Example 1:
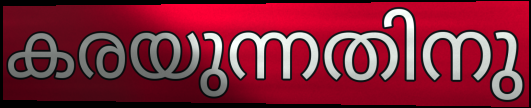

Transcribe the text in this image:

കരയുന്നതിനു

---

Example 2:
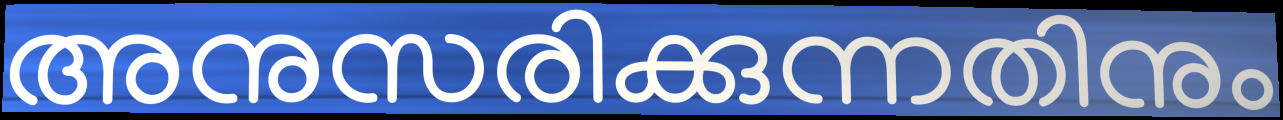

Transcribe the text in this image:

അനുസരിക്കുന്നതിനും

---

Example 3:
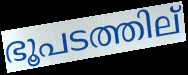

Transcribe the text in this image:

ഭൂപടത്തില്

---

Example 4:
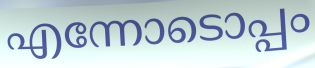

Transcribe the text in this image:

എന്നോടൊപ്പം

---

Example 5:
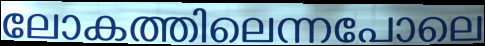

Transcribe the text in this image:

ലോകത്തിലെന്നപോലെ